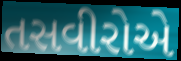
તસવીરોએ